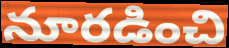
నూరడించి